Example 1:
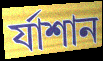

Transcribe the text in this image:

র্যাশান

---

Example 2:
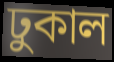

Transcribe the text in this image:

ঢুকাল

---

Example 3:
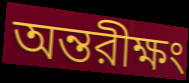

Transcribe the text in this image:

অন্তরীক্ষং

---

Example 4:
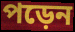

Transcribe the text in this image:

পড়েন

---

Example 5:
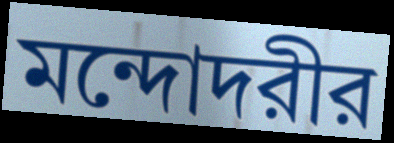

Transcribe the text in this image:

মন্দোদরীর